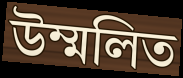
উম্মলিত